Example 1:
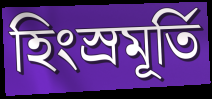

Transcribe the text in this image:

হিংস্রমূর্তি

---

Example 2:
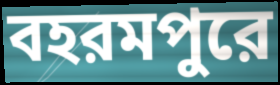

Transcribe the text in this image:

বহরমপুরে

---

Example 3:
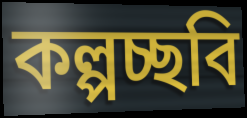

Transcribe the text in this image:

কল্পচ্ছবি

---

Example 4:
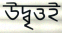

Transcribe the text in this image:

উদ্বৃত্তই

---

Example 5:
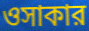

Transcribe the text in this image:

ওসাকার